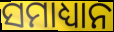
ସମାଧ୍ୟାନ